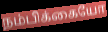
நம்பிக்கையோ